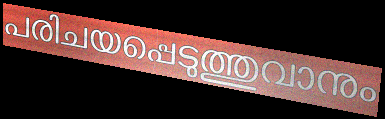
പരിചയപ്പെടുത്തുവാനും